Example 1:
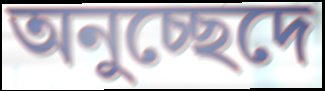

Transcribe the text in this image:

অনুচ্ছেদে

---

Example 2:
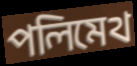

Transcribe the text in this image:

পলিমেথ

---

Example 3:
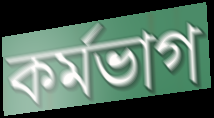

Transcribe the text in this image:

কৰ্মভাগ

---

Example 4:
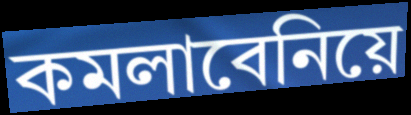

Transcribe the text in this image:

কমলাবেনিয়ে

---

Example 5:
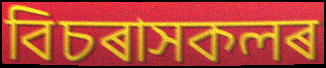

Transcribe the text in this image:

বিচৰাসকলৰ